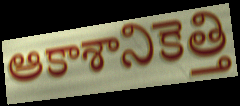
ఆకాశానికెత్తి